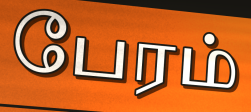
பேரம்